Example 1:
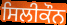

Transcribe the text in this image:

ਸਿਲੀਕੌਨ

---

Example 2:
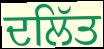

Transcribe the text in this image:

ਦਲਿੱਤ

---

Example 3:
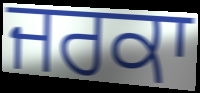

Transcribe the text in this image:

ਜਰਕਾ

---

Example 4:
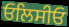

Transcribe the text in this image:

ਓਲਿਸੀਓ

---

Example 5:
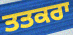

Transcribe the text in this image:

ਤਤਕਰਾ